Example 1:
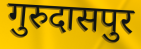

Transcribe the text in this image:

गुरुदासपुर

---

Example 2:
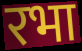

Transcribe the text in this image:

रभा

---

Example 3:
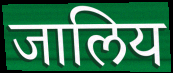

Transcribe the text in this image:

जालिय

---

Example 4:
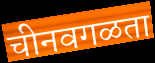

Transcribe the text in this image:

चीनवगळता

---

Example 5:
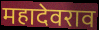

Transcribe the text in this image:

महादेवराव